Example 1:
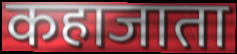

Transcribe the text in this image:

कहाजाता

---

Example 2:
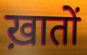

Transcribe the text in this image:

ख़ातों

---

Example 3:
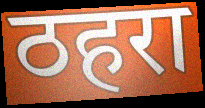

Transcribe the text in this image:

ठहरा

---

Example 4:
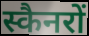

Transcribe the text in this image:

स्कैनरों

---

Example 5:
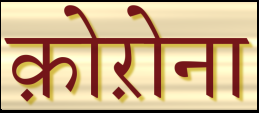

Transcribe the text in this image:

क़ोऱोना